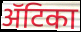
ॲटिका